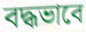
বদ্ধভাবে